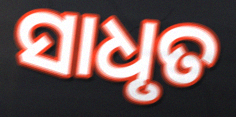
ସାଧୃତ